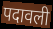
पदावली